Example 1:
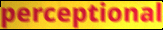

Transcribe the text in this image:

perceptional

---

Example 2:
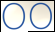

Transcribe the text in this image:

OO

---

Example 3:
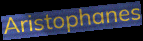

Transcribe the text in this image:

Aristophanes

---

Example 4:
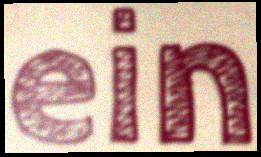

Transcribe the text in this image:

ein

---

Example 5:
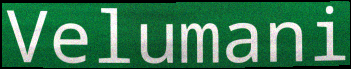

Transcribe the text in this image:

Velumani